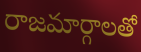
రాజమార్గాలతో